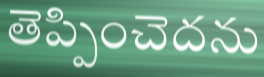
తెప్పించెదను